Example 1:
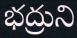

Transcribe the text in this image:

భద్రుని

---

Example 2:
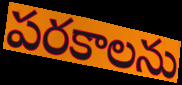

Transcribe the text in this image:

పరకాలను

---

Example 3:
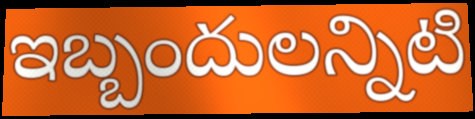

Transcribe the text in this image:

ఇబ్బందులన్నిటి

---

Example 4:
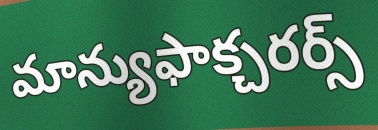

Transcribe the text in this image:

మాన్యుఫాక్చరర్స్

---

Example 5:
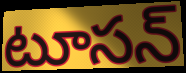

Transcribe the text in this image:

టూసన్